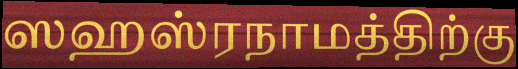
ஸஹஸ்ரநாமத்திற்கு